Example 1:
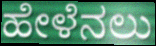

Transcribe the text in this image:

ಹೇಳೆನಲು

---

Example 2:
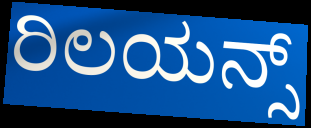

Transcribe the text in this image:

ರಿಲಯನ್ಸ್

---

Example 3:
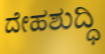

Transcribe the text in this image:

ದೇಹಶುದ್ಧಿ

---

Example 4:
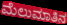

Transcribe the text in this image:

ಮೆಲುಮಾತಿನ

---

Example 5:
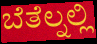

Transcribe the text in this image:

ಬೆತೆಲ್ನಲ್ಲಿ